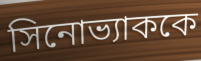
সিনোভ্যাককে